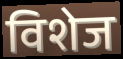
विशेज